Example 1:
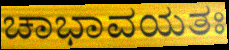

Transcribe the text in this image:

ಚಾಭಾವಯತಃ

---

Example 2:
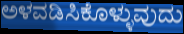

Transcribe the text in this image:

ಅಳವಡಿಸಿಕೊಳ್ಳುವುದು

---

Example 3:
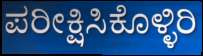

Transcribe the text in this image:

ಪರೀಕ್ಷಿಸಿಕೊಳ್ಳಿರಿ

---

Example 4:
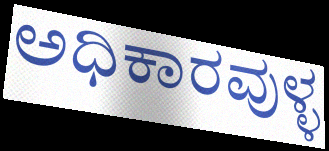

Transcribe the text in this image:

ಅಧಿಕಾರವುಳ್ಳ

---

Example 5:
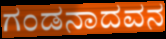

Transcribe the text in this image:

ಗಂಡನಾದವನ